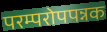
परम्परोपपन्नक